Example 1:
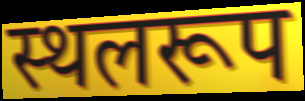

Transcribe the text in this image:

स्थलरूप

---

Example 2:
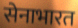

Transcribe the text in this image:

सेनाभारत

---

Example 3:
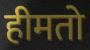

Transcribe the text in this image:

हीमतो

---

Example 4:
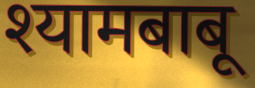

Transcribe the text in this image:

श्यामबाबू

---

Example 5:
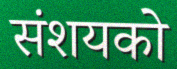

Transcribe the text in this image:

संशयको